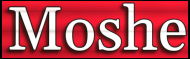
Moshe